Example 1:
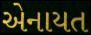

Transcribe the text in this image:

એનાયત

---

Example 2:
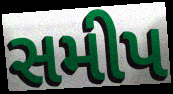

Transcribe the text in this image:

સમીપ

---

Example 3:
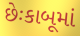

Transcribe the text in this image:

છેઃકાબૂમાં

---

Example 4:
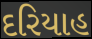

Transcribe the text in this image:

દરિયાહ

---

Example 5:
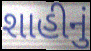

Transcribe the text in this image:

શાહીનું